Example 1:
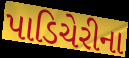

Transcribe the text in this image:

પાડિચેરીના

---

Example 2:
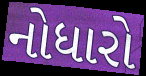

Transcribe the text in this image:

નોધારો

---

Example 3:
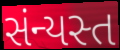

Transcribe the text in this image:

સંન્યસ્ત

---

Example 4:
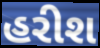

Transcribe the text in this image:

હરીશ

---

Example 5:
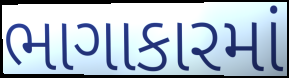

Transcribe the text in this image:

ભાગાકારમાં